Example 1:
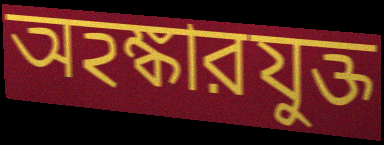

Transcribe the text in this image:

অহঙ্কারযুক্ত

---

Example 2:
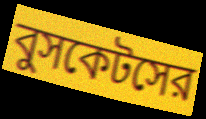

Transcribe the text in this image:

বুসকেটসের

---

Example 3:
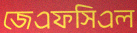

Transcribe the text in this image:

জেএফসিএল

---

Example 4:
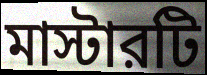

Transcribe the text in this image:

মাস্টারটি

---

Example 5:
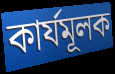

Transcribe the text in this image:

কার্যমূলক